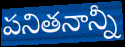
పనితనాన్నీ